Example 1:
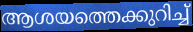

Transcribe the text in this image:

ആശയത്തെക്കുറിച്ച്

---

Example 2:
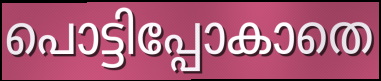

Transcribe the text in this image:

പൊട്ടിപ്പോകാതെ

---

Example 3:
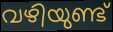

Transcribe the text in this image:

വഴിയുണ്ട്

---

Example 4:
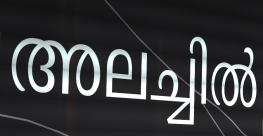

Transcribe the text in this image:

അലച്ചിൽ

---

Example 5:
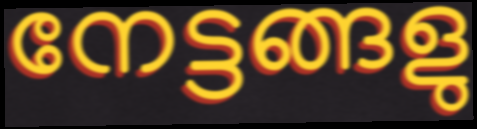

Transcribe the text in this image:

നേട്ടങ്ങളു